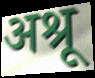
अश्रू